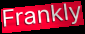
Frankly